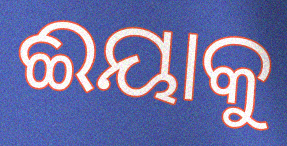
ଈୟାକୁ